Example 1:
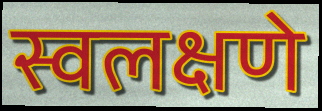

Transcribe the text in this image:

स्वलक्षणे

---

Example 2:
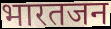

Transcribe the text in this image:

भारतजन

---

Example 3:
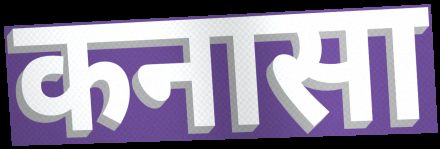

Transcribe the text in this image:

कनासा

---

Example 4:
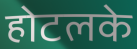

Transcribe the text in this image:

होटलके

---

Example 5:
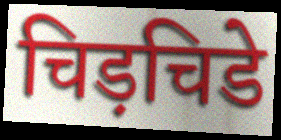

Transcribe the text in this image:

चिड़चिडे